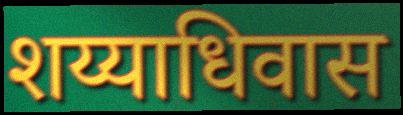
शय्याधिवास